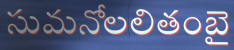
సుమనోలలితంబై